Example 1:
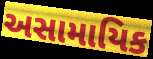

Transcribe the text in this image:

અસામાયિક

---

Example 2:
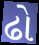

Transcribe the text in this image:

ઢો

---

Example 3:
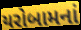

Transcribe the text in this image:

યરોબામનાં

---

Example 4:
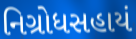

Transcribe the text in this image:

નિગ્રોધસહાયં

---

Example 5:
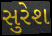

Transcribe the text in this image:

સુરેશ